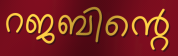
റജബിന്റെ